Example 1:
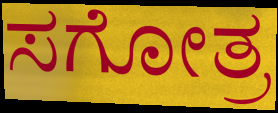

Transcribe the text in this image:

ಸಗೋತ್ರ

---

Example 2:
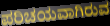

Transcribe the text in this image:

ಪರಿಚಯವಾಗಿರುವ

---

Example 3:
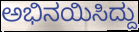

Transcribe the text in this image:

ಅಭಿನಯಿಸಿದ್ದು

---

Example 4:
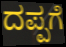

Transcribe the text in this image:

ದಪ್ಪಗೆ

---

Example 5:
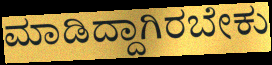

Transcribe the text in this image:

ಮಾಡಿದ್ದಾಗಿರಬೇಕು